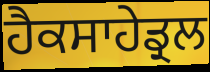
ਹੈਕਸਾਹੇਡ੍ਰਲ